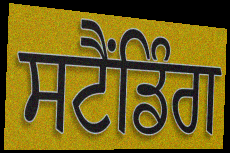
ਸਟੈਂਡਿੰਗ